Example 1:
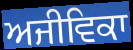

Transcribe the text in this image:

ਅਜੀਵਿਕਾ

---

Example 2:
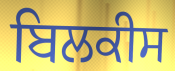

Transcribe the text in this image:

ਬਿਲਕੀਸ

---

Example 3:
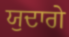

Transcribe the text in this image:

ਯੁਦਾਗੇ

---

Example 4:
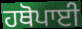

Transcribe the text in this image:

ਹਥੋਪਾਈ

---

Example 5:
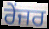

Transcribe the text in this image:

ਰੇਂਜਰ